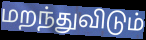
மறந்துவிடும்